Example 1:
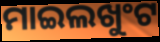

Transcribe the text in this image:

ମାଇଲଖୁଂଟ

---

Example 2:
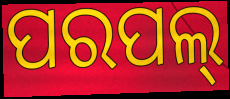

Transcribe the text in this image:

ପରପଲ୍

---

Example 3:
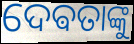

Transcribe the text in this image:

ଦେଵତାଙ୍କୁ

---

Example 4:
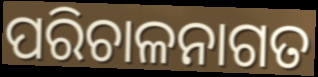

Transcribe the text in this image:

ପରିଚାଳନାଗତ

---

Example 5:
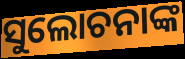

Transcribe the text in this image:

ସୁଲୋଚନାଙ୍କ